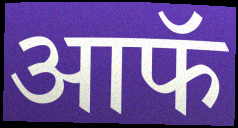
आफॅ